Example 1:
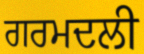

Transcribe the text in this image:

ਗਰਮਦਲੀ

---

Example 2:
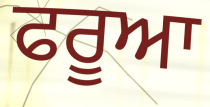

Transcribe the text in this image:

ਫਰੂਆ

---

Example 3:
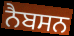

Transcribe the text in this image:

ਨੈਬਸਨ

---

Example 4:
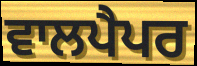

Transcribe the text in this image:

ਵਾਲਪੈਪਰ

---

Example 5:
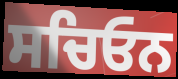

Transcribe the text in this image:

ਸਚਿਓਨ